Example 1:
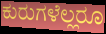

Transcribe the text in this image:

ಕುರುಗಳೆಲ್ಲರೂ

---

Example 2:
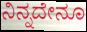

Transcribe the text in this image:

ನಿನ್ನದೇನೂ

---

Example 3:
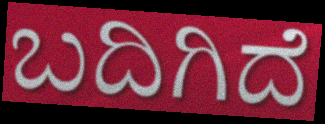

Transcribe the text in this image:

ಬದಿಗಿದೆ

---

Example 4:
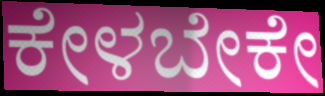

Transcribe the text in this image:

ಕೇಳಬೇಕೇ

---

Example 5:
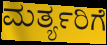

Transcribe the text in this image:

ಮರ್ತ್ಯರಿಗೆ